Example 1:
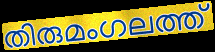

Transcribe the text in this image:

തിരുമംഗലത്ത്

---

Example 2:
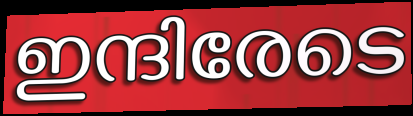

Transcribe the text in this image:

ഇന്ദിരേടെ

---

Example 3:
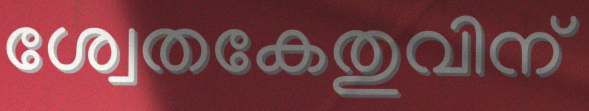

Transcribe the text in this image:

ശ്വേതകേതുവിന്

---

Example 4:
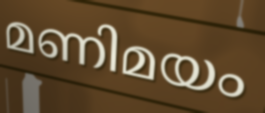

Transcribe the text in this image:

മണിമയം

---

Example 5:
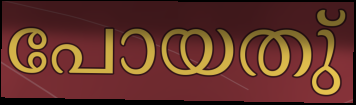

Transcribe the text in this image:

പോയതു്